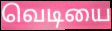
வெடியை